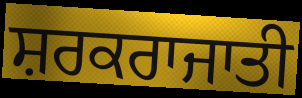
ਸ਼ਰਕਰਾਜਾਤੀ